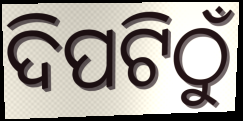
ଦିପଟିଠୁଁ